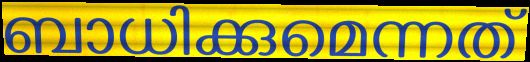
ബാധിക്കുമെന്നത്